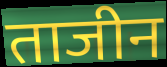
ताजीन